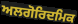
ਅਲਗੋਰਿਦਮਿਕ